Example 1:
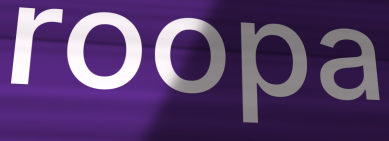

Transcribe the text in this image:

roopa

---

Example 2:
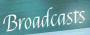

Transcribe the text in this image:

Broadcasts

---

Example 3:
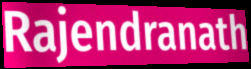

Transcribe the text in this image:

Rajendranath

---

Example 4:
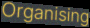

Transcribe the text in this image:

Organising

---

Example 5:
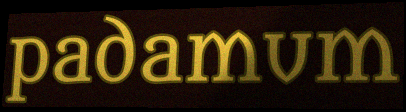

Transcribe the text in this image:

padamum